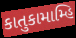
કાતુકામામ્હિ